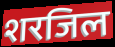
शरजिल